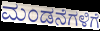
ಮಂಡನೆಗಳಿಗೆ